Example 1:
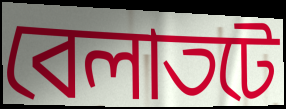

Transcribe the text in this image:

বেলাতটে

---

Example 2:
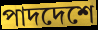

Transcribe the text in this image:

পাদদেশে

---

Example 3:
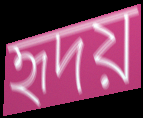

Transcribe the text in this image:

হৃদয়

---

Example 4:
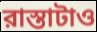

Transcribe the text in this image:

রাস্তাটাও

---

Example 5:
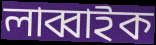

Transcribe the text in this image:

লাব্বাইক